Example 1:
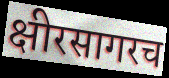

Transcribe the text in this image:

क्षीरसागरच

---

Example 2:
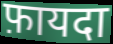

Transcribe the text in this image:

फ़ायदा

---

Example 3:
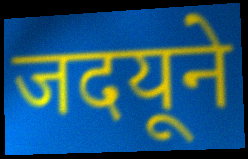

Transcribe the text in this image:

जदयूने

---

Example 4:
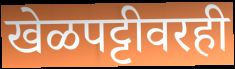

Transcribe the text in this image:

खेळपट्टीवरही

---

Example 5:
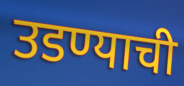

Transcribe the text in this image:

उडण्याची